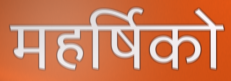
महर्षिको